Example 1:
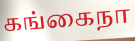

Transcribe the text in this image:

கங்கைநா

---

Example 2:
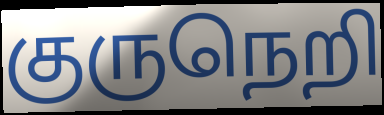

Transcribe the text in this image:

குருநெறி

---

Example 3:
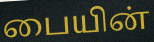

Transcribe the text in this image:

பையின்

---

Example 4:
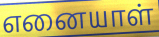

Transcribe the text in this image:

எனையாள்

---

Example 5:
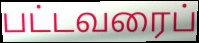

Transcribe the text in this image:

பட்டவரைப்